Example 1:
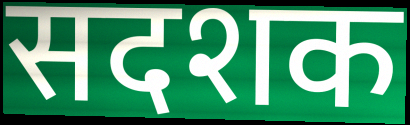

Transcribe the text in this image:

सदशक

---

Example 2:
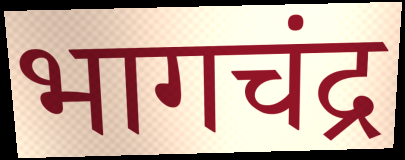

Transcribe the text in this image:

भागचंद्र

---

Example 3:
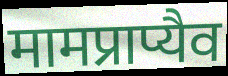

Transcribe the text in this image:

मामप्राप्यैव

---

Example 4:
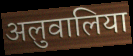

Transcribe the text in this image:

अलुवालिया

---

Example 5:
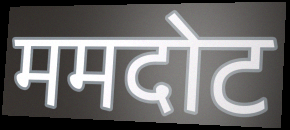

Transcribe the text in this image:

ममदोट